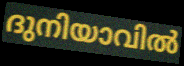
ദുനിയാവിൽ